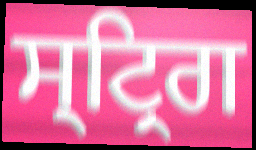
ਸ੍ਟ੍ਰਿਗ